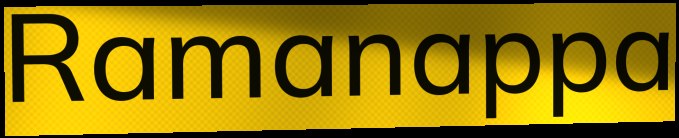
Ramanappa